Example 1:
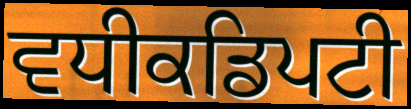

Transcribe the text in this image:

ਵਧੀਕਡਿਪਟੀ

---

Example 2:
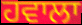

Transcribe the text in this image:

ਹਵਾਲਾ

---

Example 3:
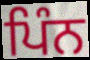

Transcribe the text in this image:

ਪਿੰਨ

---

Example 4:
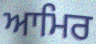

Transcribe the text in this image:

ਆਮਿਰ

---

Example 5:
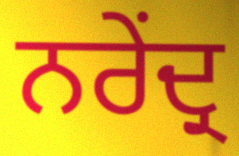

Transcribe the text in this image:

ਨਰੇਂਦ੍ਰ